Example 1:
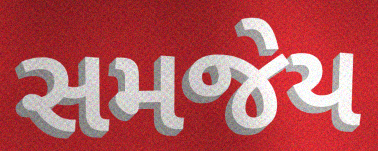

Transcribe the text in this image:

સમજેય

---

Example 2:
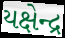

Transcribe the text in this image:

યક્ષેન્દ્ર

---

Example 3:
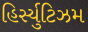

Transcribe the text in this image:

હિર્સ્યુટિઝમ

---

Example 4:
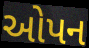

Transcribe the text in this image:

ઓપન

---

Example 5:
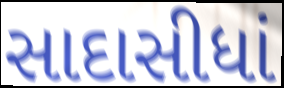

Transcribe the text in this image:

સાદાસીધાં